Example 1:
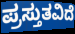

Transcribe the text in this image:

ಪ್ರಸ್ತುತವಿದೆ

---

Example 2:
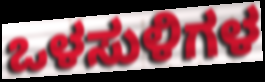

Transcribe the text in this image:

ಒಳಸುಳಿಗಳ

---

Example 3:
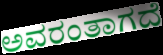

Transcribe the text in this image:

ಅವರಂತಾಗದೆ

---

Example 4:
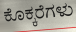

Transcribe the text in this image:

ಕೊಕ್ಕರೆಗಳು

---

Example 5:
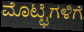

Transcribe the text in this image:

ಮೊಟ್ಟೆಗಳಿಗೆ